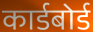
कार्डबोर्ड